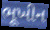
ભૂખીન